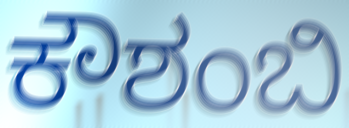
ಕೌಶಂಬಿ